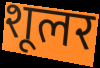
शूलर